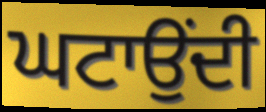
ਘਟਾਉਂਦੀ